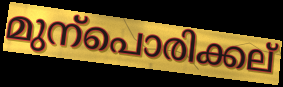
മുന്പൊരിക്കല്